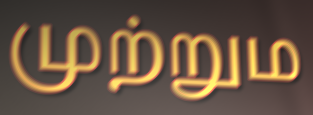
முற்றும